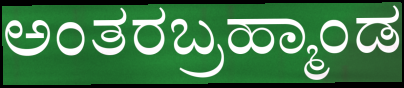
ಅಂತರಬ್ರಹ್ಮಾಂಡ